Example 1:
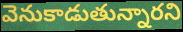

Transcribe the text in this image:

వెనుకాడుతున్నారని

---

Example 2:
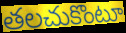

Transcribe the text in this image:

తలచుకొంటూ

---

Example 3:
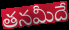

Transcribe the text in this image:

తనమీదే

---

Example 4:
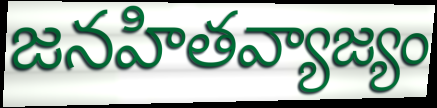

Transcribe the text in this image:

జనహితవ్యాజ్యం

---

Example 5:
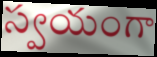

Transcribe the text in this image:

స్వయంగా